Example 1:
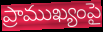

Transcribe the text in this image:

ప్రాముఖ్యంపై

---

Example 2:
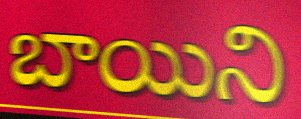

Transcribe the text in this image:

బాయిని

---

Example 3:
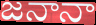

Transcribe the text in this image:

జనానా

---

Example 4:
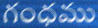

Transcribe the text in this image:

గంధము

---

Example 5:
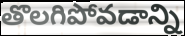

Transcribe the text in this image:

తొలగిపోవడాన్ని